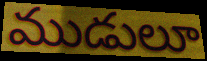
ముడులూ